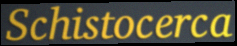
Schistocerca